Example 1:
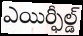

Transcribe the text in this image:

ఎయిర్ఫీల్డ్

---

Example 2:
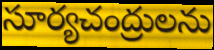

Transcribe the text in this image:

సూర్యచంద్రులను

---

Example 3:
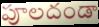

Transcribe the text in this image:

పూలదండా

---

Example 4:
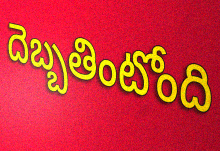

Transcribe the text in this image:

దెబ్బతింటోంది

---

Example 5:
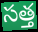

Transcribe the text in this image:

సత్త